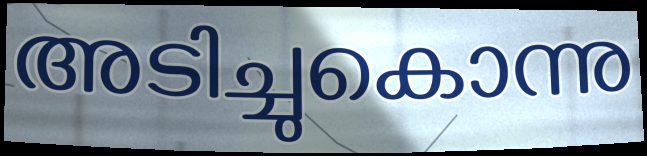
അടിച്ചുകൊന്നു